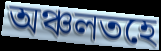
অঞ্চলতহে